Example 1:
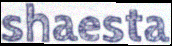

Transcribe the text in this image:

shaesta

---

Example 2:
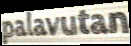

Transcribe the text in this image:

palavutan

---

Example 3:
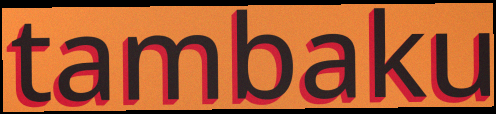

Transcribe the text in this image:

tambaku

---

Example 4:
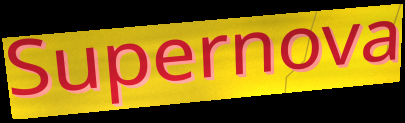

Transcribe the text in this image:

Supernova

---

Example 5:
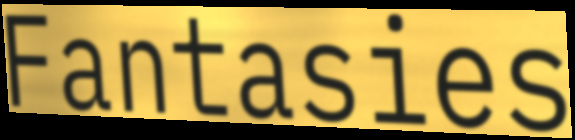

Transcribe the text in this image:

Fantasies